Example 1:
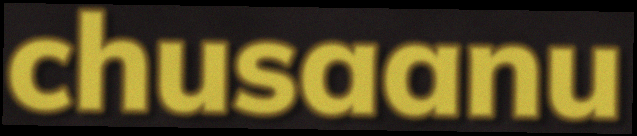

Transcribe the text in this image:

chusaanu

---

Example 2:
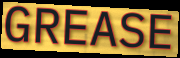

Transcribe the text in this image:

GREASE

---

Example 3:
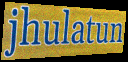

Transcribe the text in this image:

jhulatun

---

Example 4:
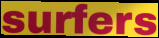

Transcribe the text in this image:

surfers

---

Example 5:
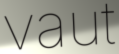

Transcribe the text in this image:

vaut